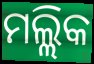
ମଲ୍ଲିକ